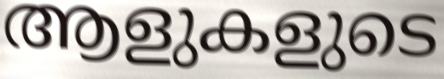
ആളുകളുടെ